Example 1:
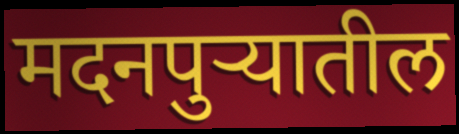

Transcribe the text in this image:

मदनपुऱ्यातील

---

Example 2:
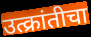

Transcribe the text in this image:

उत्क्रांतीचा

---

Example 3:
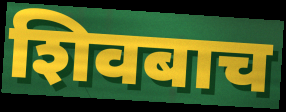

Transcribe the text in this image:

शिवबाच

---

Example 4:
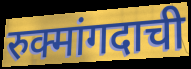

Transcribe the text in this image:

रुक्मांगदाची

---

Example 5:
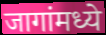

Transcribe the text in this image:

जागांमध्ये